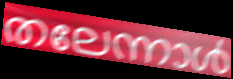
തലേന്നാൾ